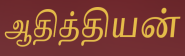
ஆதித்தியன்